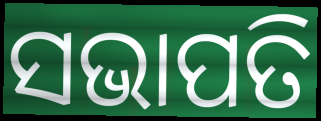
ସଭାପତି